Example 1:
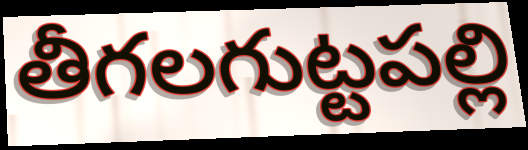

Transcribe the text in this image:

తీగలగుట్టపల్లి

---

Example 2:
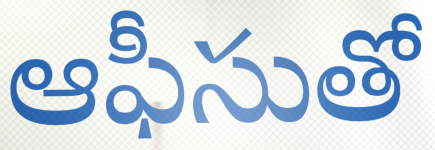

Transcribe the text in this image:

ఆఫీసుతో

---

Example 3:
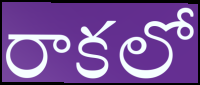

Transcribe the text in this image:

రాకలో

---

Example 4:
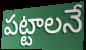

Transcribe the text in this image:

పట్టాలనే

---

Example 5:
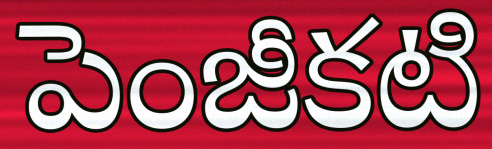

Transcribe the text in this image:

పెంజీకటి